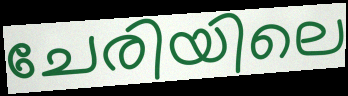
ചേരിയിലെ